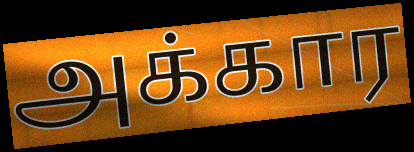
அக்கார